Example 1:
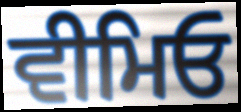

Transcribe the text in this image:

ਵੀਮਿਓ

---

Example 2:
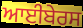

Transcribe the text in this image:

ਆਈਬੇਰਸ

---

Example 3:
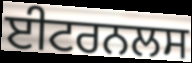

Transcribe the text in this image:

ਈਟਰਨਲਸ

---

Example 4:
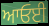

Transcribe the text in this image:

ਆਓਈ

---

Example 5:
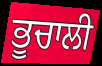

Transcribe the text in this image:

ਭੂਚਾਲੀ